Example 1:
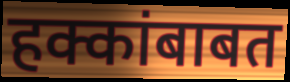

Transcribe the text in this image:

हक्कांबाबत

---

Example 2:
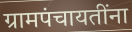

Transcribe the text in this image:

ग्रामपंचायतींना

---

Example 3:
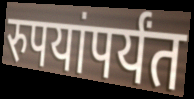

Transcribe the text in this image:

रुपयांपर्यंत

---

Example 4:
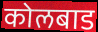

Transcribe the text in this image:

कोलबाड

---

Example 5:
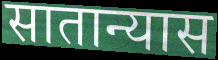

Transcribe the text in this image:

सातान्यास